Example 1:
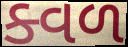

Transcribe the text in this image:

ક્વળ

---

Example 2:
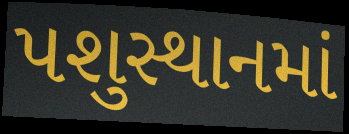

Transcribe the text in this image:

પશુસ્થાનમાં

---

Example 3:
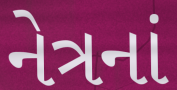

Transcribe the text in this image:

નેત્રનાં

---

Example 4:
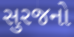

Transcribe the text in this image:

સુરજનો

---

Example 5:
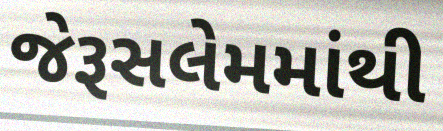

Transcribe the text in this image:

જેરૂસલેમમાંથી